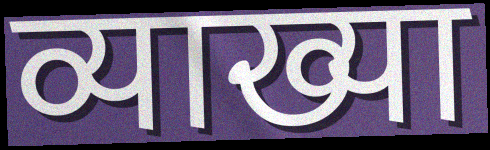
व्याख्‍या